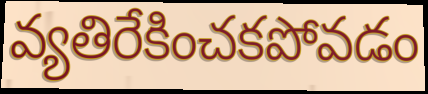
వ్యతిరేకించకపోవడం